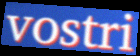
vostri